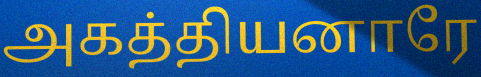
அகத்தியனாரே